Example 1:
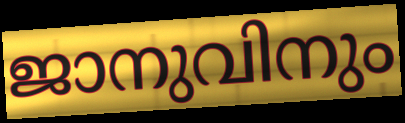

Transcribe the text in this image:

ജാനുവിനും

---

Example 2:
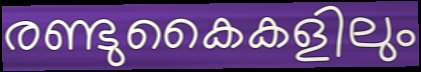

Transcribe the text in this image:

രണ്ടുകൈകളിലും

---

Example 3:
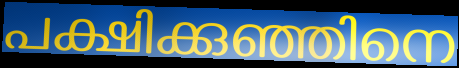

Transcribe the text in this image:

പക്ഷിക്കുഞ്ഞിനെ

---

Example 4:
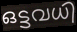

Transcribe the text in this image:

ഒട്ടവധി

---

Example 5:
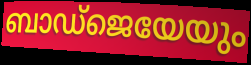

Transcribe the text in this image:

ബാഡ്ജെയേയും